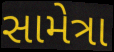
સામેત્રા